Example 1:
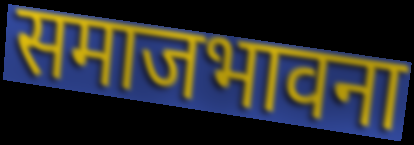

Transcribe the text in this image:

समाजभावना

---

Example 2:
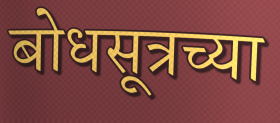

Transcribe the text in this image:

बोधसूत्रच्या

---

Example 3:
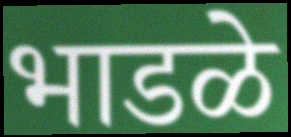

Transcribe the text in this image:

भाडळे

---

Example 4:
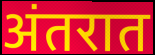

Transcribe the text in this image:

अंतरात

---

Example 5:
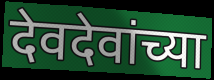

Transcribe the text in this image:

देवदेवांच्या